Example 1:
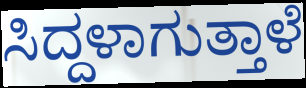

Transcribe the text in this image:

ಸಿದ್ದಳಾಗುತ್ತಾಳೆ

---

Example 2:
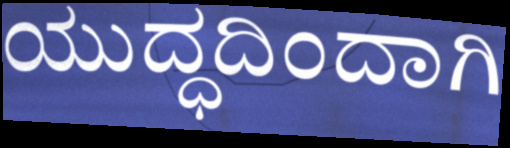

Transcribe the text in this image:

ಯುದ್ಧದಿಂದಾಗಿ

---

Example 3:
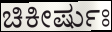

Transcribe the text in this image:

ಚಿಕೀರ್ಷುಃ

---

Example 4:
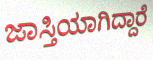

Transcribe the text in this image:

ಜಾಸ್ತಿಯಾಗಿದ್ದಾರೆ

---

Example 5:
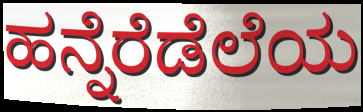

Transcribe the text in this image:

ಹನ್ನೆರೆಡೆಲೆಯ